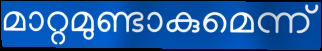
മാറ്റമുണ്ടാകുമെന്ന്